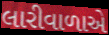
લારીવાળાએ